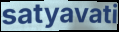
satyavati